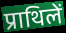
प्राथिलें